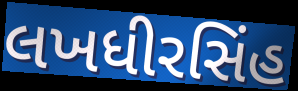
લખધીરસિંહ